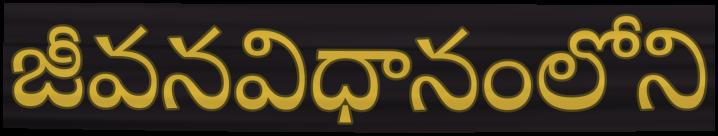
జీవనవిధానంలోని